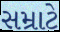
સમ્રાટે